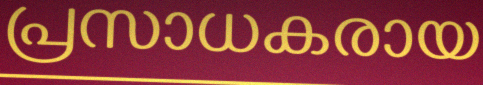
പ്രസാധകരായ